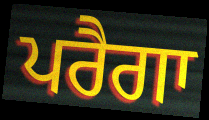
ਪਰੈਗਾ